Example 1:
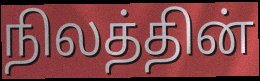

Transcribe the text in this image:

நிலத்தின்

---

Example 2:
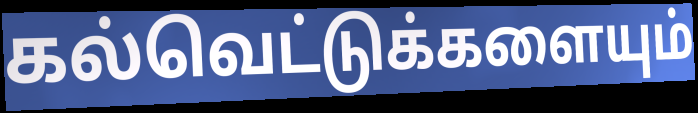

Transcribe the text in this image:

கல்வெட்டுக்களையும்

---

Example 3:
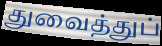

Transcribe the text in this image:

துவைத்துப்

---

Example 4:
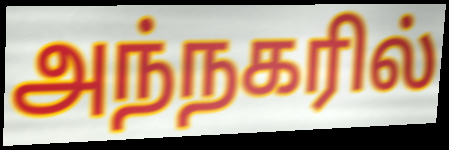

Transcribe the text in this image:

அந்நகரில்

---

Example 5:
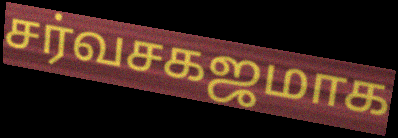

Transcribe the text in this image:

சர்வசகஜமாக